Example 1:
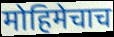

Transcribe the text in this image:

मोहिमेचाच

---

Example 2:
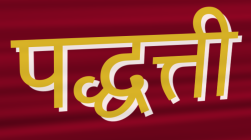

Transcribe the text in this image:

पद्धत्ती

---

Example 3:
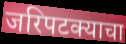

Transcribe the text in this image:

जरिपटक्याचा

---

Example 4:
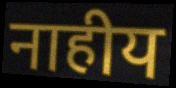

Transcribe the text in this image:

नाहीय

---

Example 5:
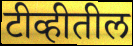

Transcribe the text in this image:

टीव्हीतील